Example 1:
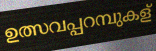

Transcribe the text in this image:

ഉത്സവപ്പറമ്പുകള്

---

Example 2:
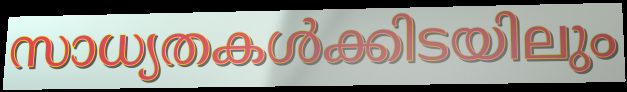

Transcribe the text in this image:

സാധ്യതകൾക്കിടയിലും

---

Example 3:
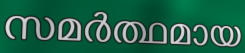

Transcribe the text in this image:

സമർത്ഥമായ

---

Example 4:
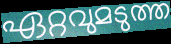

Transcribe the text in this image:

ഏറ്റവുമടുത്ത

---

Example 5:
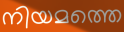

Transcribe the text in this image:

നിയമത്തെ